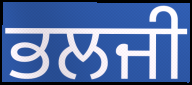
ਭਲਜੀ